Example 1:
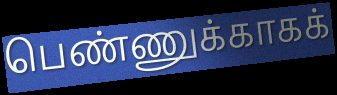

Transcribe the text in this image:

பெண்ணுக்காகக்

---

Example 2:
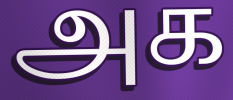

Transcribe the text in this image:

அக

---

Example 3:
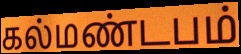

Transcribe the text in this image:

கல்மண்டபம்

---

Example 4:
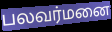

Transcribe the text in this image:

பலவர்மனை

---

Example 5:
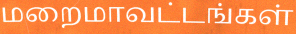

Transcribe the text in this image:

மறைமாவட்டங்கள்